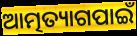
ଆତ୍ମତ୍ୟାଗପାଇଁ